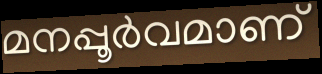
മനപ്പൂർവമാണ്